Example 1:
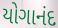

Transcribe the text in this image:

યોગાનંદ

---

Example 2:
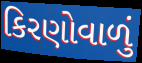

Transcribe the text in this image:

કિરણોવાળું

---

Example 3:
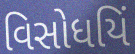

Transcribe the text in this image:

વિસોધયિં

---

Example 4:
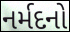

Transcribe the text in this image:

નર્મદનો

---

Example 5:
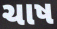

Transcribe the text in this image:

ચાષ